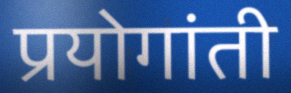
प्रयोगांती